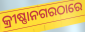
କ୍ରୀଷ୍ଣାନଗରଠାରେ